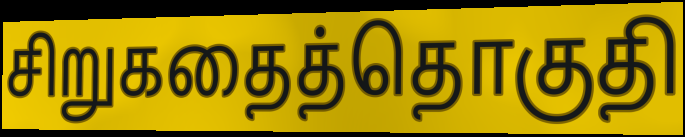
சிறுகதைத்தொகுதி